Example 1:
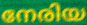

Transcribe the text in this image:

നേരിയ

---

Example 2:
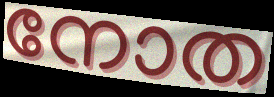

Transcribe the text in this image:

നോത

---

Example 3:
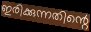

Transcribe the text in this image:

ഇരിക്കുന്നതിന്റെ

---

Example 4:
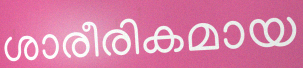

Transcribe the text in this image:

ശാരീരികമായ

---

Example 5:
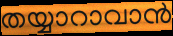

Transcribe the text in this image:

തയ്യാറാവാൻ